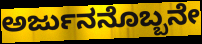
ಅರ್ಜುನನೊಬ್ಬನೇ